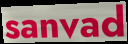
sanvad